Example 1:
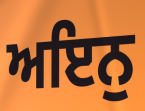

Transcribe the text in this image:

ਅਇਨੁ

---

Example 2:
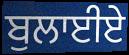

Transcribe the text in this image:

ਬੁਲਾਈਏ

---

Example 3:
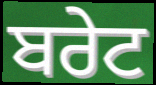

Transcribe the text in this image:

ਬਰੇਟ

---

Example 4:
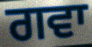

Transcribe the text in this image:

ਗਵਾ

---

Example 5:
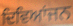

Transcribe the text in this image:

ਦਿਵਿਆਂਜਨ